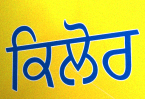
ਕਿਲੋਰ